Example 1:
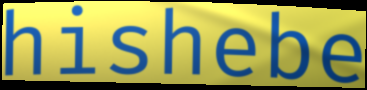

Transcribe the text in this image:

hishebe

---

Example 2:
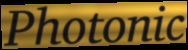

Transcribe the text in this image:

Photonic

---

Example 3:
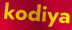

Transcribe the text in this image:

kodiya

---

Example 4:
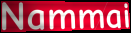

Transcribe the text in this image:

Nammai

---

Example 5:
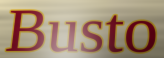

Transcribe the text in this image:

Busto